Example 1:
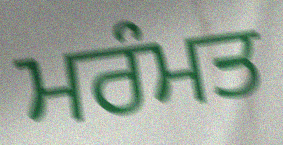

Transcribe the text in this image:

ਮਰੰਮਤ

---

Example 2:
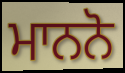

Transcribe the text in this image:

ਮਾਨਨੋ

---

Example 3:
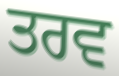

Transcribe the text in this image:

ਤਰਵ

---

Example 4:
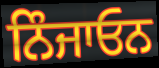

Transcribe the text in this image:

ਨਿੰਜਾਓਨ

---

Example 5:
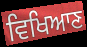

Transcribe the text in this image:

ਵਿਖਿਆਣ